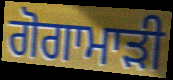
ਗੋਗਾਮਾੜੀ